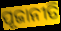
ପୂଜାନୀତି